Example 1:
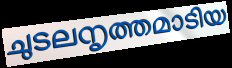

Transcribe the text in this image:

ചുടലനൃത്തമാടിയ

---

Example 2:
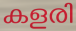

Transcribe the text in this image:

കളരി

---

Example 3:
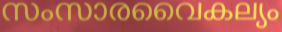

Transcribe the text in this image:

സംസാരവൈകല്യം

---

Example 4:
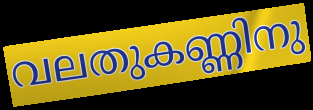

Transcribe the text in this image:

വലതുകണ്ണിനു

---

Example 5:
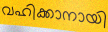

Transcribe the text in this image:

വഹിക്കാനായി